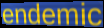
endemic